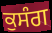
ਕੁਸੰਗ